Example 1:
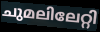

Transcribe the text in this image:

ചുമലിലേറ്റി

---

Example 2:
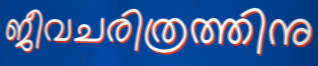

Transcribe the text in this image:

ജീവചരിത്രത്തിനു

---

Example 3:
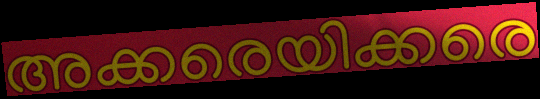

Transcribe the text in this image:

അക്കരെയിക്കരെ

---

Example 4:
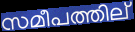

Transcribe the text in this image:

സമീപത്തില്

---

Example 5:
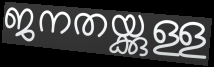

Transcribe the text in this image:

ജനതയ്ക്കുള്ള